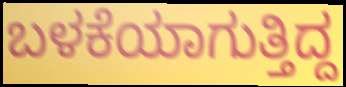
ಬಳಕೆಯಾಗುತ್ತಿದ್ದ